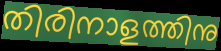
തിരിനാളത്തിനു